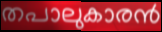
തപാലുകാരൻ